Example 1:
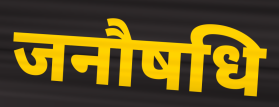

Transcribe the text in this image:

जनौषधि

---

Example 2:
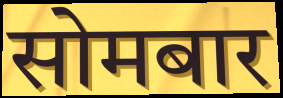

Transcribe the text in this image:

सोमबार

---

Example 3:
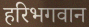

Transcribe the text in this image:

हरिभगवान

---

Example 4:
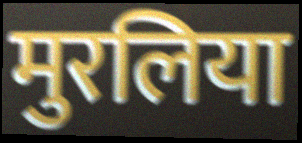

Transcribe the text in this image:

मुरलिया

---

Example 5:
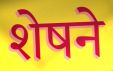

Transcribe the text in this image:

शेषने